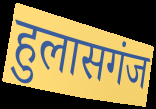
हुलासगंज